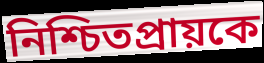
নিশ্চিতপ্রায়কে